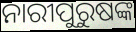
ନାରୀପୁରୁଷଙ୍କ